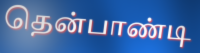
தென்பாண்டி